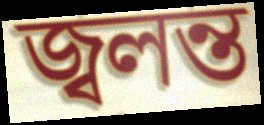
জ্বলন্ত